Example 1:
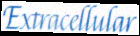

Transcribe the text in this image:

Extracellular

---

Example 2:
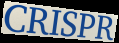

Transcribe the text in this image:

CRISPR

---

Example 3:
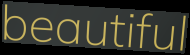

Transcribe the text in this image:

beautiful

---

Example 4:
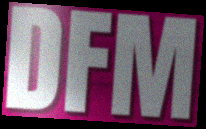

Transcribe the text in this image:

DFM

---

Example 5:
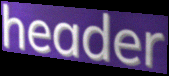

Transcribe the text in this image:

header